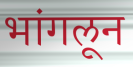
भांगलून